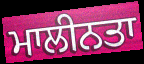
ਮਾਲੀਨਤਾ